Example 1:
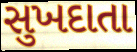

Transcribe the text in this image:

સુખદાતા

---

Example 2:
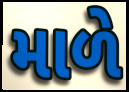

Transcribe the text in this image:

માળે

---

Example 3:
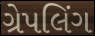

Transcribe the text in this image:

ગ્રેપલિંગ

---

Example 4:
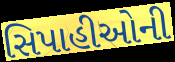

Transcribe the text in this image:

સિપાહીઓની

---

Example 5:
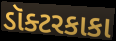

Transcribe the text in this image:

ડૉક્ટરકાકા